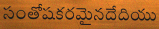
సంతోషకరమైనదేదియు